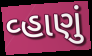
વ્હાણું